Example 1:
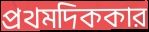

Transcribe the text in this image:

প্রথমদিককার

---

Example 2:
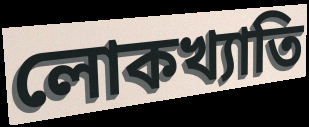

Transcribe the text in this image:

লোকখ্যাতি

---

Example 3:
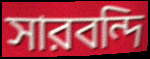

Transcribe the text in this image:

সারবন্দি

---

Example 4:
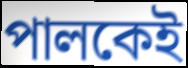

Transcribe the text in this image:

পালকেই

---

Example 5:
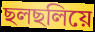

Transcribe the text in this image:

ছলছলিয়ে